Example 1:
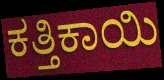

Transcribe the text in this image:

ಕತ್ತಿಕಾಯಿ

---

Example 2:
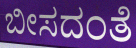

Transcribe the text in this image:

ಬೀಸದಂತೆ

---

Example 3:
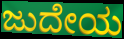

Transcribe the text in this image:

ಜುದೇಯ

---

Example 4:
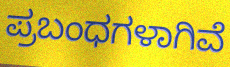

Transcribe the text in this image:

ಪ್ರಬಂಧಗಳಾಗಿವೆ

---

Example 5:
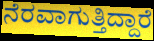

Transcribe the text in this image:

ನೆರವಾಗುತ್ತಿದ್ದಾರೆ